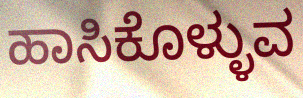
ಹಾಸಿಕೊಳ್ಳುವ